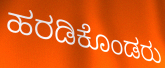
ಹರಡಿಕೊಂಡರು